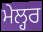
ਮੇਲ੍ਹਰ